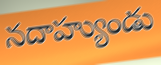
నదాహ్యుండు